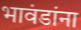
भावंडांना